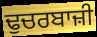
ਢੁਚਰਬਾਜ਼ੀ